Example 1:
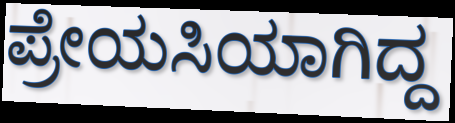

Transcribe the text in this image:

ಪ್ರೇಯಸಿಯಾಗಿದ್ದ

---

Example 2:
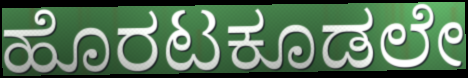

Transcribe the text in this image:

ಹೊರಟಕೂಡಲೇ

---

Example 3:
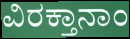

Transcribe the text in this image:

ವಿರಕ್ತಾನಾಂ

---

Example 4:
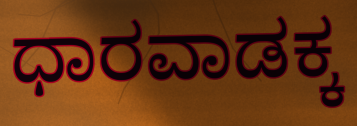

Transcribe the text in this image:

ಧಾರವಾಡಕ್ಕ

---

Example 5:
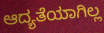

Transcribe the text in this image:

ಆದ್ಯತೆಯಾಗಿಲ್ಲ